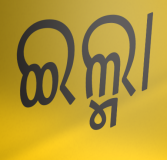
ଇଲ୍ମା